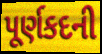
પૂર્ણકદની